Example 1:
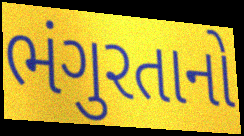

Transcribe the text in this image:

ભંગુરતાનો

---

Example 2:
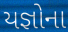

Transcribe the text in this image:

યજ્ઞોના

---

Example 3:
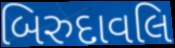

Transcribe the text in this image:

બિરુદાવલિ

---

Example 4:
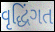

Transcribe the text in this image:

વૃદ્ધિંગત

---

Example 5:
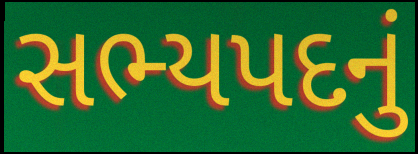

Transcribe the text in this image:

સભ્યપદનું